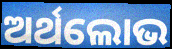
ଅର୍ଥଲୋଭ